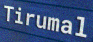
Tirumal